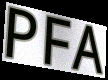
PFA